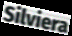
Silviera